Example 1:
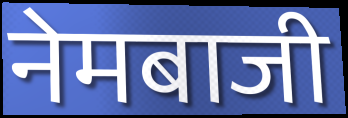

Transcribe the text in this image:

नेमबाजी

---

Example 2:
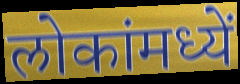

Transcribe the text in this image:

लोकांमध्यें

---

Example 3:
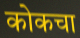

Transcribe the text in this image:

कोकचा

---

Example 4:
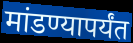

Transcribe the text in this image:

मांडण्यापर्यंत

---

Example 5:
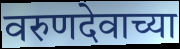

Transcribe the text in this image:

वरुणदेवाच्या